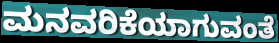
ಮನವರಿಕೆಯಾಗುವಂತೆ